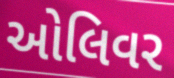
ઓલિવર